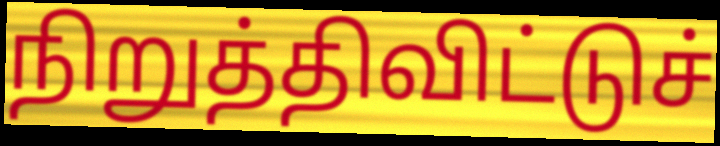
நிறுத்திவிட்டுச்